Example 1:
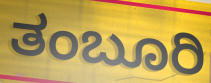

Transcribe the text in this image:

ತಂಬೂರಿ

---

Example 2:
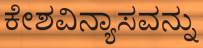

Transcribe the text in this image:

ಕೇಶವಿನ್ಯಾಸವನ್ನು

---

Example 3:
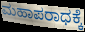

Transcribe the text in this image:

ಮಹಾಪರಾಧಕ್ಕೆ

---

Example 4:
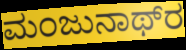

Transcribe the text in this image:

ಮಂಜುನಾಥ್‌ರ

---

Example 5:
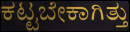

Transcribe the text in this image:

ಕಟ್ಟಬೇಕಾಗಿತ್ತು